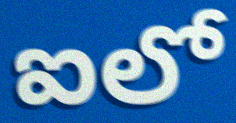
ఐలో